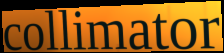
collimator